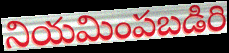
నియమింపబడిరి